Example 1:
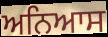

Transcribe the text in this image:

ਅਨਿਆਸ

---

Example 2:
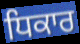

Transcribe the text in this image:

ਧਿਕਾਰ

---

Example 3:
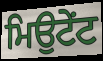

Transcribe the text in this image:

ਮਿਉਟੇਂਟ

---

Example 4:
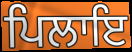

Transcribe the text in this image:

ਪਿਲਾਇ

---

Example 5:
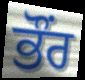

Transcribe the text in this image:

ਭੌਂਰ